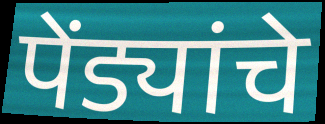
पेंड्यांचे